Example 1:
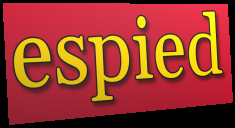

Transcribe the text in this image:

espied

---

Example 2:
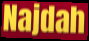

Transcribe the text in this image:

Najdah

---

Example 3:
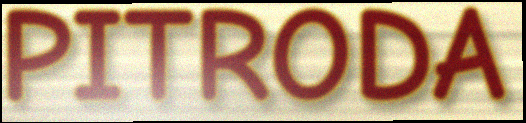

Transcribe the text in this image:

PITRODA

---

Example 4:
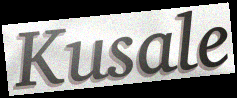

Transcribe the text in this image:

Kusale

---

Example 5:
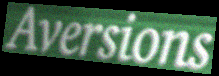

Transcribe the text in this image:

Aversions